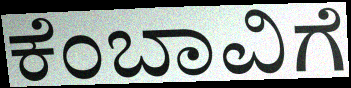
ಕೆಂಬಾವಿಗೆ